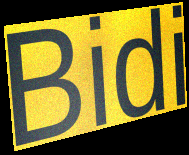
Bidi